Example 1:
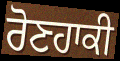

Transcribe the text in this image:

ਰੋਣਹਾਕੀ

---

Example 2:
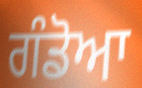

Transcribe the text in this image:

ਗੰਡੋਆ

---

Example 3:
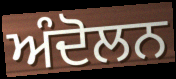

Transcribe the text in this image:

ਅੰਦੋਲਨ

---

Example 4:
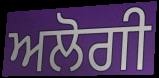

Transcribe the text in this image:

ਅਲੋਗੀ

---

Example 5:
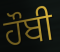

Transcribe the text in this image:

ਹੌਬੀ